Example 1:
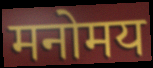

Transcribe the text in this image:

मनोमय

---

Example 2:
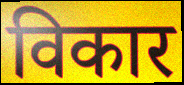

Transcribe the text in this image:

विकार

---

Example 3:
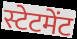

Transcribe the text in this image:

स्टेटमेंट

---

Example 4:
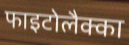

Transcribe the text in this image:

फाइटोलैक्का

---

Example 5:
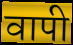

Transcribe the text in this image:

वापी